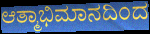
ಆತ್ಮಾಭಿಮಾನದಿಂದ